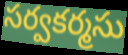
సర్వకర్మసు